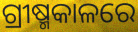
ଗ୍ରୀଷ୍ମକାଳରେ